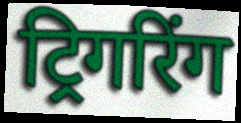
ट्रिगरिंग